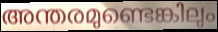
അന്തരമുണ്ടെങ്കിലും